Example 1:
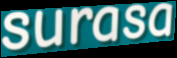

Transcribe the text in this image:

surasa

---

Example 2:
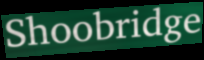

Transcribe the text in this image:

Shoobridge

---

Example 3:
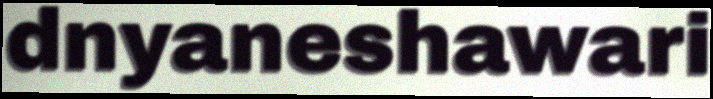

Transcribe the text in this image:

dnyaneshawari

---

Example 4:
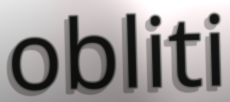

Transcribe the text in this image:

obliti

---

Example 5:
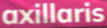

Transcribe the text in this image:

axillaris